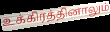
உக்கிரத்தினாலும்